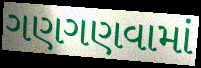
ગણગણવામાં